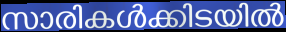
സാരികൾക്കിടയിൽ